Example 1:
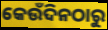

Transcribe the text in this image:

କେଉଁଦିନଠାରୁ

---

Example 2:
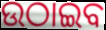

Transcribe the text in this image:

ଉଠାଇବ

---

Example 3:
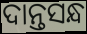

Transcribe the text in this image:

ଦାନ୍ତସନ୍ଧ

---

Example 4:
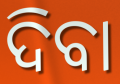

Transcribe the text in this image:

ଦିବା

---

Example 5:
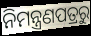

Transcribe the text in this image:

ନିମନ୍ତ୍ରଣପତ୍ରରୁ